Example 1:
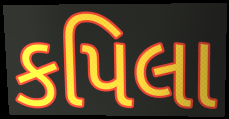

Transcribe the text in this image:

કપિલા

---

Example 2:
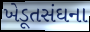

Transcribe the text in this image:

ખેડૂતસંઘના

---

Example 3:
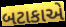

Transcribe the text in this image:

બટાકાએ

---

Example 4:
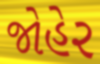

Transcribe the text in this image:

જોહેર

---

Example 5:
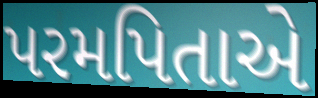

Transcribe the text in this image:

પરમપિતાએ